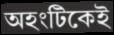
অহংটিকেই